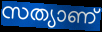
സത്യാണ്